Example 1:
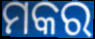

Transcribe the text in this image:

ମକର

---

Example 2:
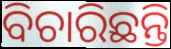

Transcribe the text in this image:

ବିଚାରିଛନ୍ତି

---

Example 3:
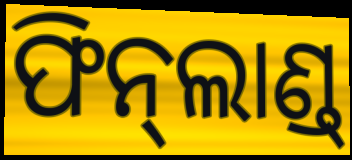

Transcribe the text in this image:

ଫିନ୍‌ଲାଣ୍ଡ୍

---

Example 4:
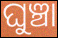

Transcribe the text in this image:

ଘୁଞ୍ଚା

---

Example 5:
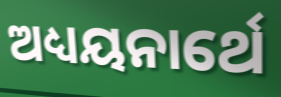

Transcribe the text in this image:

ଅଧ୍ୟୟନାର୍ଥେ